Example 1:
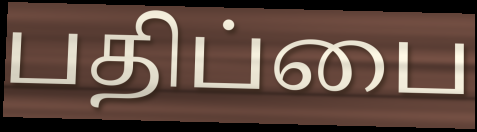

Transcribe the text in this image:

பதிப்பை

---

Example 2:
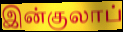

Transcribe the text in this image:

இன்குலாப்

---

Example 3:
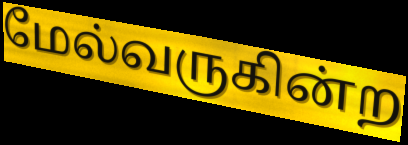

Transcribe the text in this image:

மேல்வருகின்ற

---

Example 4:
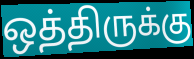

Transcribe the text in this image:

ஒத்திருக்கு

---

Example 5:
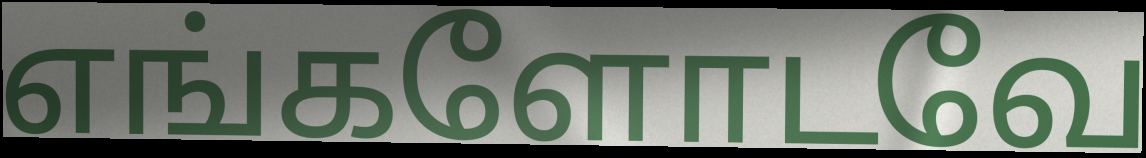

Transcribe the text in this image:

எங்களோடவே